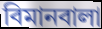
বিমানবালা